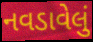
નવડાવેલું